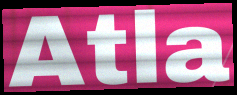
Atla